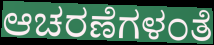
ಆಚರಣೆಗಳಂತೆ